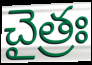
చైత్రః